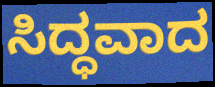
ಸಿದ್ಧವಾದ